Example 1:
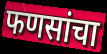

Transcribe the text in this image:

फणसांचा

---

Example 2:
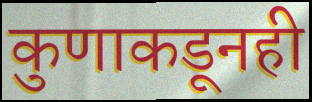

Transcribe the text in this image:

कुणाकडूनही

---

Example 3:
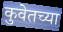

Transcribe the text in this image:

कुवेतच्या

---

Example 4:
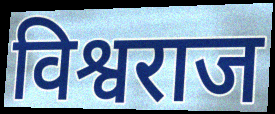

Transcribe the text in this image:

विश्वराज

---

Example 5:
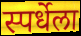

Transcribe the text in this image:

स्पर्धेला